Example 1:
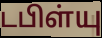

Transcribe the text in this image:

டபிள்யு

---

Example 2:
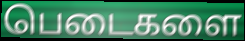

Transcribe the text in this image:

பெடைகளை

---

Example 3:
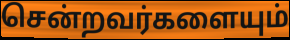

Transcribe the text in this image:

சென்றவர்களையும்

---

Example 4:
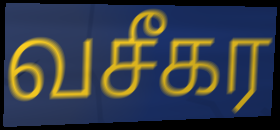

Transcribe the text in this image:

வசீகர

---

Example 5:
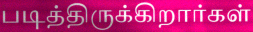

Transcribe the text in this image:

படித்திருக்கிறார்கள்